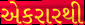
એકરારથી